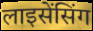
लाइसेंसिंग